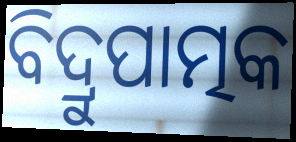
ବିଦ୍ରୁପାତ୍ମକ